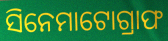
ସିନେମାଟୋଗ୍ରାଫ